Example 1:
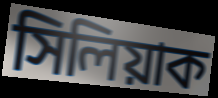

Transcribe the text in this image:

সিলিয়াক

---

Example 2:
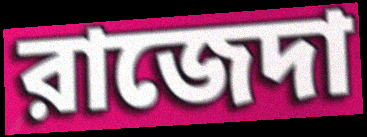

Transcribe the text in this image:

রাজেদা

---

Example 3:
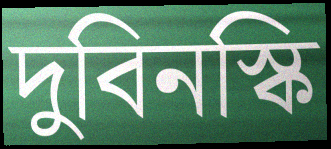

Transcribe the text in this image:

দুবিনস্কি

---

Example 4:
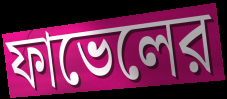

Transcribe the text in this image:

ফাভেলের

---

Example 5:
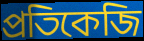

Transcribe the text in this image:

প্রতিকেজি